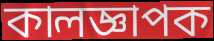
কালজ্ঞাপক